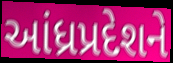
આંધ્રપ્રદેશને